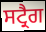
ਸਟ੍ਰੈਗ